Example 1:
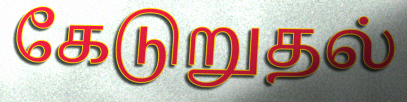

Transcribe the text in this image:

கேடுறுதல்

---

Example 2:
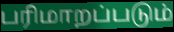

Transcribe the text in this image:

பரிமாறப்படும்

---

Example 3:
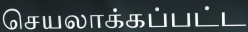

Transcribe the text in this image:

செயலாக்கப்பட்ட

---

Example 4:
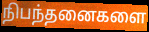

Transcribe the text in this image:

நிபந்தனைகளை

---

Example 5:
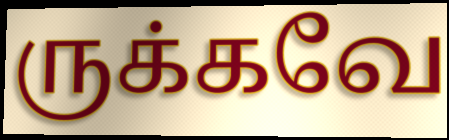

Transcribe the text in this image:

ருக்கவே